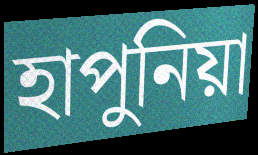
হাপুনিয়া